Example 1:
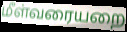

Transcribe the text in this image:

மீள்வரையறை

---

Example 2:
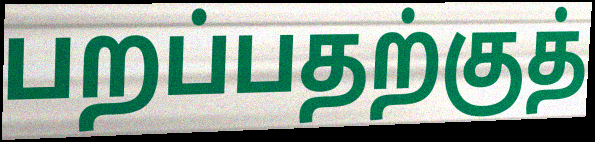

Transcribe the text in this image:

பறப்பதற்குத்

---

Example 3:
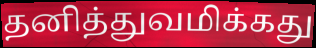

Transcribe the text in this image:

தனித்துவமிக்கது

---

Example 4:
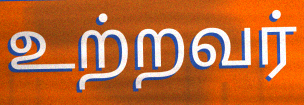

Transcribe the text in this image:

உற்றவர்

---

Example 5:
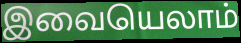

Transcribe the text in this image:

இவையெலாம்